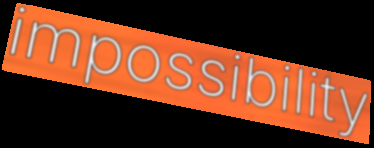
impossibility